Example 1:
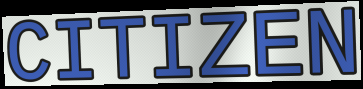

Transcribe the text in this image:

CITIZEN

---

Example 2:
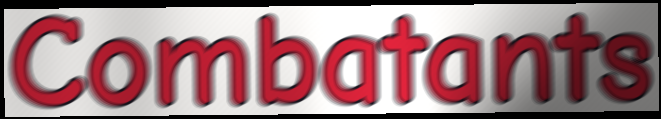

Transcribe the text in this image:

Combatants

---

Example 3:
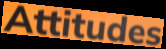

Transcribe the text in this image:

Attitudes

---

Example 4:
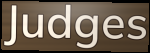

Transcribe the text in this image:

Judges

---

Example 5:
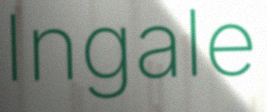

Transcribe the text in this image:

Ingale